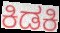
ಕಿಡಕಿ